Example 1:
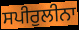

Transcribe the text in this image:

ਸਪੀਰੁਲੀਨਾ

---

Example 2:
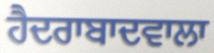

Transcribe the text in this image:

ਹੈਦਰਾਬਾਦਵਾਲਾ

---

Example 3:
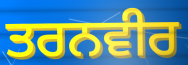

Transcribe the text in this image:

ਤਰਨਵੀਰ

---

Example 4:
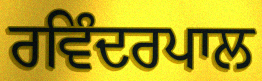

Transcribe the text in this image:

ਰਵਿੰਦਰਪਾਲ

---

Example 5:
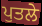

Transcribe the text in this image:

ਪੁਤਲੇ